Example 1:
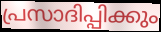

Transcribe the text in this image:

പ്രസാദിപ്പിക്കും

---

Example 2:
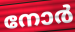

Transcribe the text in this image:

നോർ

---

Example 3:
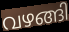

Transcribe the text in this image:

വഴങ്ങി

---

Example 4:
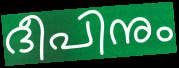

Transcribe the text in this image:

ദീപിനും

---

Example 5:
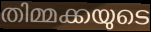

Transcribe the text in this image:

തിമ്മക്കയുടെ